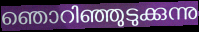
ഞൊറിഞ്ഞുടുക്കുന്നു